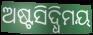
ଅଷ୍ଟସିଦ୍ଧିମୟ